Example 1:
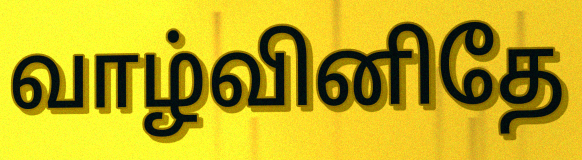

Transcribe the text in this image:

வாழ்வினிதே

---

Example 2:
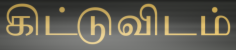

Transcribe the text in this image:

கிட்டுவிடம்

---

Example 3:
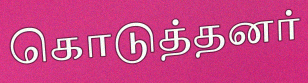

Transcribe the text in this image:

கொடுத்தனர்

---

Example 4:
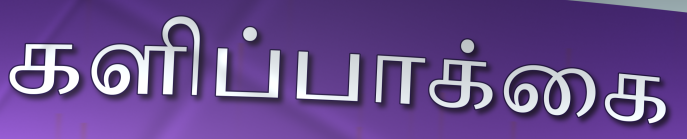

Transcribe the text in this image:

களிப்பாக்கை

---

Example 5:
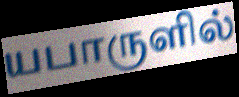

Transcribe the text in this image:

யபாருளில்